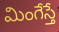
మింగేస్తే